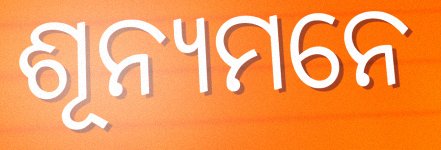
ଶୂନ୍ୟମନେ